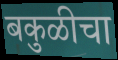
बकुळीचा